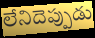
లేనిదెప్పుడు